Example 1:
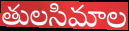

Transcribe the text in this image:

తులసిమాల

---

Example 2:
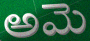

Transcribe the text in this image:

అమె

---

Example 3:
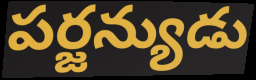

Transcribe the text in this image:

పర్జన్యుడు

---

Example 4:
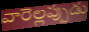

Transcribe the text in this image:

వారెల్లప్పుడు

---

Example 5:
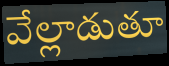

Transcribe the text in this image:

వేల్లాడుతూ